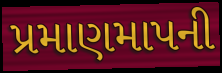
પ્રમાણમાપની